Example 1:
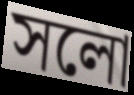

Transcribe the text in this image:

সলো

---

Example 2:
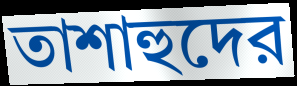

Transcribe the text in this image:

তাশাহুদের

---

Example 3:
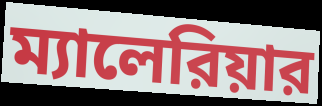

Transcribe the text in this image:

ম্যালেরিয়ার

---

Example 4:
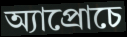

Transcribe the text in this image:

অ্যাপ্রোচে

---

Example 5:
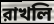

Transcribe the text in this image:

রাখলি